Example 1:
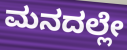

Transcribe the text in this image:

ಮನದಲ್ಲೇ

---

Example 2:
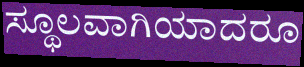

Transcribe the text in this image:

ಸ್ಥೂಲವಾಗಿಯಾದರೂ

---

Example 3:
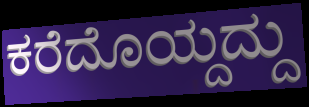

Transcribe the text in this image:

ಕರೆದೊಯ್ದದ್ದು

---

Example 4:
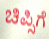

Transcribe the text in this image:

ಚಿಪ್ಸಿಗೆ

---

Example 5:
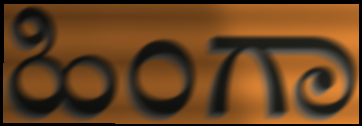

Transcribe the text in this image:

ಹಿಂಗಾ